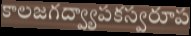
కాలజగద్వ్యాపకస్వరూప